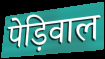
पेड़िवाल